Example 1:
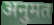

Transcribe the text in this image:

अनुमत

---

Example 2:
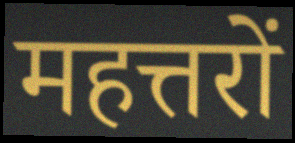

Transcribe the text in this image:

महत्तरों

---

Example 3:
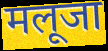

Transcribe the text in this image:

मलूजा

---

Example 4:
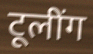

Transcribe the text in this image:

टूलींग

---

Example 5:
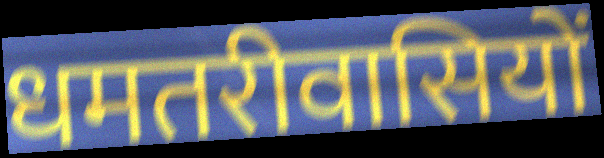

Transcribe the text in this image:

धमतरीवासियों